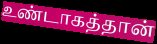
உண்டாகத்தான்